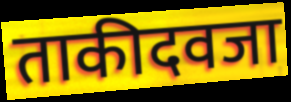
ताकीदवजा